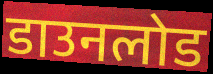
डाउनलोड